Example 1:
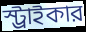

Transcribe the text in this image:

স্ট্রাইকার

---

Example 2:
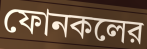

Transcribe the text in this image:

ফোনকলের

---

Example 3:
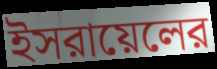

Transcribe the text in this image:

ইসরায়েলের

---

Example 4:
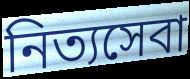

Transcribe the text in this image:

নিত্যসেবা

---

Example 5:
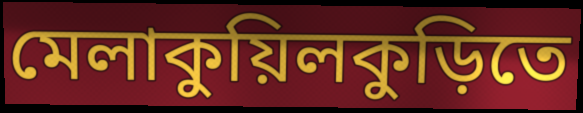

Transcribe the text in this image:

মেলাকুয়িলকুড়িতে